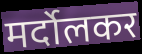
मर्दोलकर